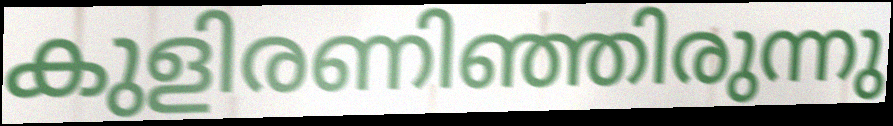
കുളിരണിഞ്ഞിരുന്നു